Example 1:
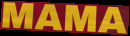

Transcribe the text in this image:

MAMA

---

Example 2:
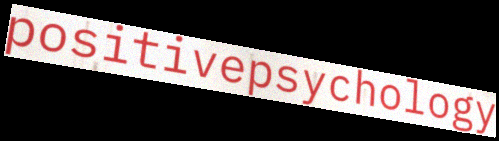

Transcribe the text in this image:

positivepsychology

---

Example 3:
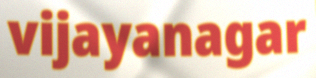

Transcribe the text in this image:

vijayanagar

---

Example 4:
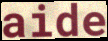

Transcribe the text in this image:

aide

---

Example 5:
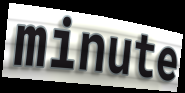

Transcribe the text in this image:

minute